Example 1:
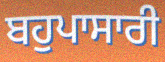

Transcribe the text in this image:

ਬਹੁਪਾਸਾਰੀ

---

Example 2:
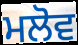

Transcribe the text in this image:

ਮਲੋਵ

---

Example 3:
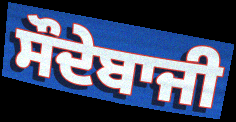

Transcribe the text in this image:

ਸੌਦੇਬਾਜੀ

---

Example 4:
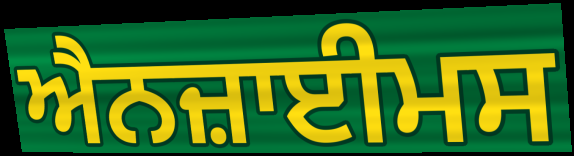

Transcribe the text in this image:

ਐਨਜ਼ਾਈਮਸ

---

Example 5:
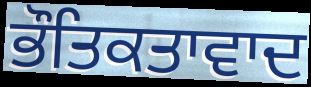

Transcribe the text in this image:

ਭੌਤਿਕਤਾਵਾਦ